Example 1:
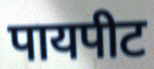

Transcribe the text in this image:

पायपीट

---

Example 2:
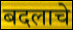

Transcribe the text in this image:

बदलाचे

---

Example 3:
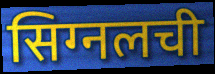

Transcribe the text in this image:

सिग्नलची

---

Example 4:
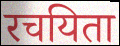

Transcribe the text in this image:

रचयिता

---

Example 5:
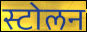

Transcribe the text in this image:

स्टोलन